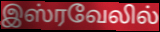
இஸ்ரவேலில்